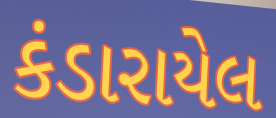
કંડારાયેલ